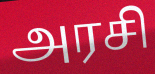
அரசி